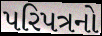
પરિપત્રનો